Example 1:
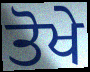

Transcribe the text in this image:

ਤੋਖੇ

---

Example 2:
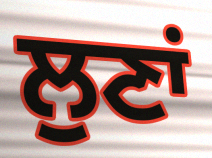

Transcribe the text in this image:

ਲੁਣਾਂ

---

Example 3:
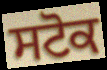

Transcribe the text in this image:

ਸਟੋਕ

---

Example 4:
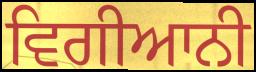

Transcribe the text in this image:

ਵਿਗੀਆਨੀ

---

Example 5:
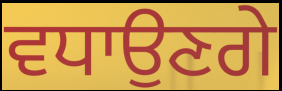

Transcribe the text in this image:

ਵਧਾਉਣਗੇ